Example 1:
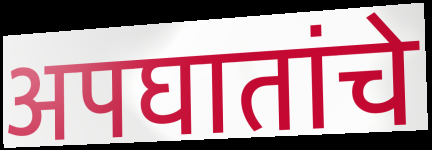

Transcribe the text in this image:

अपघातांचे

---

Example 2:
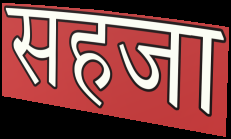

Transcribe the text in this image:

सहजा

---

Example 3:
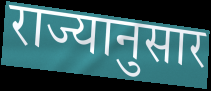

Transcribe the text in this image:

राज्यानुसार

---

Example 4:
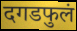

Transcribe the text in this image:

दगडफुलं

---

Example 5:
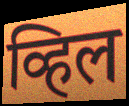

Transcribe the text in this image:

व्हिल